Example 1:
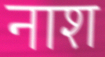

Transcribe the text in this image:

नाश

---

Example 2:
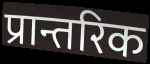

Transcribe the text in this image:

प्रान्तरिक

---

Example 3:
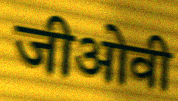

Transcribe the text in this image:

जीओवी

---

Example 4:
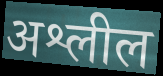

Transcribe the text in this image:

अश्लील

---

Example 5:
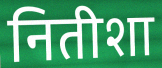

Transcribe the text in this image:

नितीशा